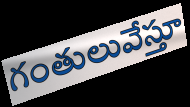
గంతులువేస్తూ